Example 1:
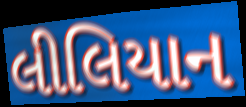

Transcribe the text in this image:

લીલિયાન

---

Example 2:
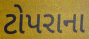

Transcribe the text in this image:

ટોપરાના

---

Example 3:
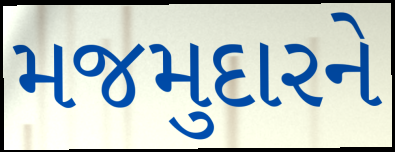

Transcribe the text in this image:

મજમુદારને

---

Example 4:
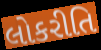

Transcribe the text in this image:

લોકરીતિ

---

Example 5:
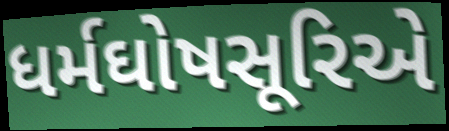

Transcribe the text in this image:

ધર્મઘોષસૂરિએ